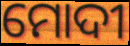
ମୋଦୀ